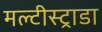
मल्टीस्ट्राडा